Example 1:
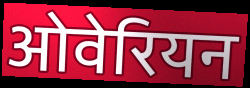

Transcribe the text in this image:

ओवेरियन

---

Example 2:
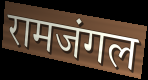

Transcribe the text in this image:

रामजंगल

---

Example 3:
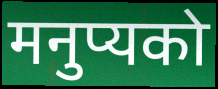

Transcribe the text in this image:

मनुप्यको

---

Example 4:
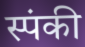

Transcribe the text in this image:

स्पंकी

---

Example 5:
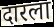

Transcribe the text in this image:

दारला